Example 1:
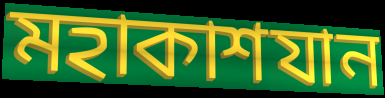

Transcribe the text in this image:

মহাকাশযান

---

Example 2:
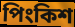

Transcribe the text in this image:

পিংকিশ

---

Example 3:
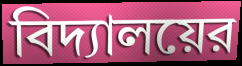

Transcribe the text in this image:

বিদ্যালয়ের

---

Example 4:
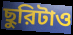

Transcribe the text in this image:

ছুরিটাও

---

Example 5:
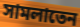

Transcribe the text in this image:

সামলাতেন